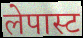
लेपास्ट